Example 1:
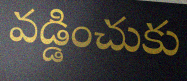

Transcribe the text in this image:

వడ్డించుకు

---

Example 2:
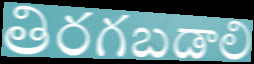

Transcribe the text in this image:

తిరగబడాలి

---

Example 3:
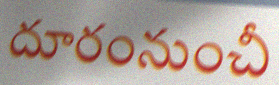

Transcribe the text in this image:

దూరంనుంచీ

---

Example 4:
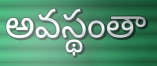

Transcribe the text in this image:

అవస్థంతా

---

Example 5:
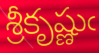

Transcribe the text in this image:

శ్రీకృష్ణుఁ